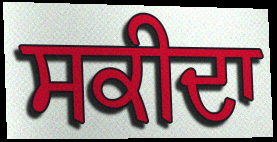
ਸਕੀਦਾ